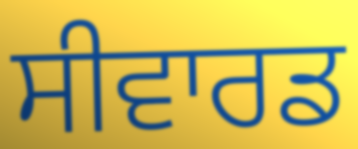
ਸੀਵਾਰਡ